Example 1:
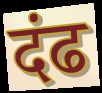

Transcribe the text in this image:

दंढ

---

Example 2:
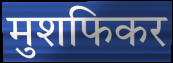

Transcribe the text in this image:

मुशफिकर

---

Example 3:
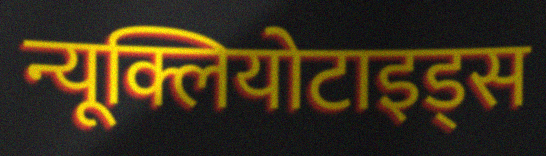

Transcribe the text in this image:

न्यूक्लियोटाइड्स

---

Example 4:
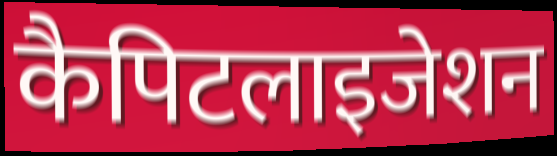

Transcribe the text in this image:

कैपिटलाइजेशन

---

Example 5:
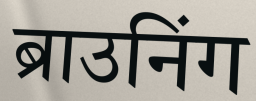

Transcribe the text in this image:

ब्राउनिंग